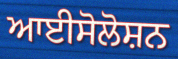
ਆਈਸੋਲੋਸ਼ਨ